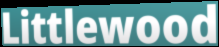
Littlewood